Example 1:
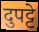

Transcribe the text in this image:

दुपट्टे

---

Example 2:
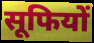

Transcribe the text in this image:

सूफियों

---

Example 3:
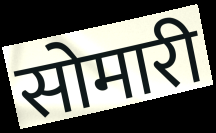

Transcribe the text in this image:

सोमारी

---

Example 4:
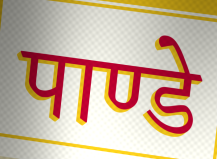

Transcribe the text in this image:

पाण्डे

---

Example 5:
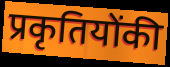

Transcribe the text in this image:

प्रकृतियोंकी